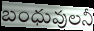
బంధువులనీ